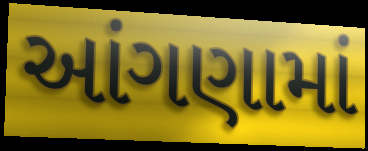
આંગણામાં